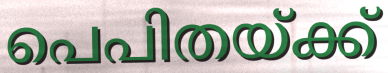
പെപിതയ്ക്ക്